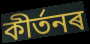
কীৰ্তনৰ